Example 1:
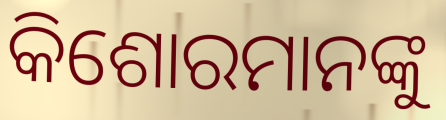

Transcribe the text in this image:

କିଶୋରମାନଙ୍କୁ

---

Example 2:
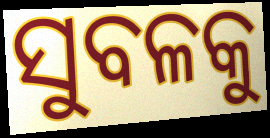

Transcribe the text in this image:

ସୁବଳକୁ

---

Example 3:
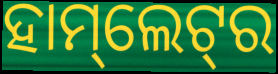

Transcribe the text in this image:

ହାମ୍‌ଲେଟ୍‌ର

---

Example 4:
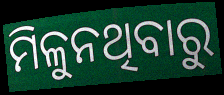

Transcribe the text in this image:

ମିଳୁନଥିବାରୁ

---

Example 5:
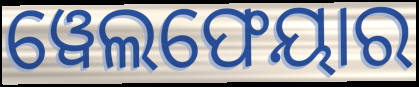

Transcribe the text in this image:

ୱେଲଫେୟାର